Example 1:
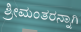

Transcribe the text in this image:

ಶ್ರೀಮಂತರನ್ನಾಗಿ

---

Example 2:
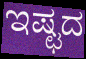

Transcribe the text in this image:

ಇಷ್ಟದ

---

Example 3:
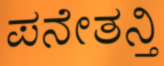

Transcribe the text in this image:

ಪನೇತನ್ತಿ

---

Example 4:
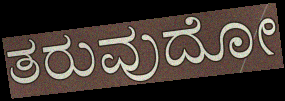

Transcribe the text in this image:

ತರುವುದೋ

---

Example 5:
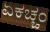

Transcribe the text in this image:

ಏಕಚ್ಚಂ